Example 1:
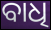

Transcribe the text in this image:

ବାଧି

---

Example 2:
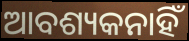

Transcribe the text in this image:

ଆବଶ୍ୟକନାହିଁ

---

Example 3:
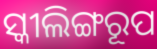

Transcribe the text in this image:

ସ୍କୀଲିଙ୍ଗରୂପ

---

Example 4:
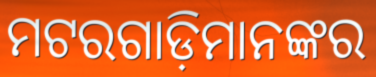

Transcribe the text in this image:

ମଟରଗାଡ଼ିମାନଙ୍କର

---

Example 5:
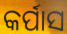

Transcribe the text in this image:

କର୍ପାସ